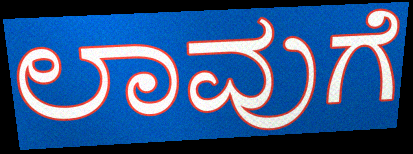
ಲಾವುಗೆ